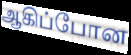
ஆகிப்போன